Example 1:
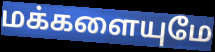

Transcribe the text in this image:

மக்களையுமே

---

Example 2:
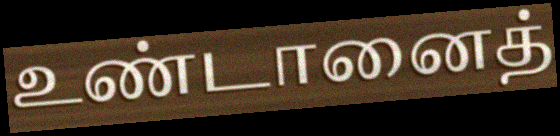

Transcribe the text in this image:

உண்டானைத்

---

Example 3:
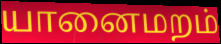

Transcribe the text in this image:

யானைமறம்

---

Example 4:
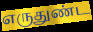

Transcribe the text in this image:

எருதுண்ட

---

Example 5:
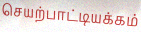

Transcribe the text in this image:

செயற்பாட்டியக்கம்